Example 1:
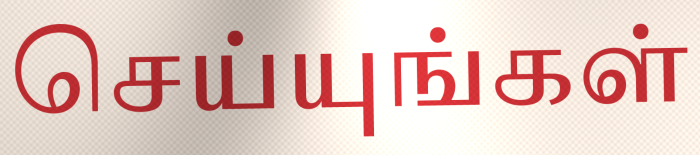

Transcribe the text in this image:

செய்யுங்கள்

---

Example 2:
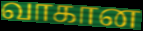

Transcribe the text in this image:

வாகான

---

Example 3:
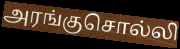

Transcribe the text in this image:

அரங்குசொல்லி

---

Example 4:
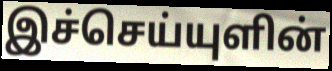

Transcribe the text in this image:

இச்செய்யுளின்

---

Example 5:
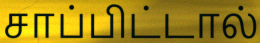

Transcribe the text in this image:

சாப்பிட்டால்